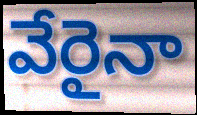
వేరైనా